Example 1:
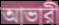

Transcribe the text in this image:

আভারী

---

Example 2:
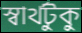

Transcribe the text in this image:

স্বার্থটুকু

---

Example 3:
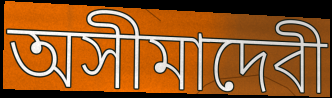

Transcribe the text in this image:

অসীমাদেবী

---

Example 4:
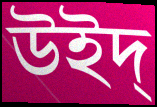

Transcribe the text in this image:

উইদ্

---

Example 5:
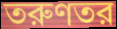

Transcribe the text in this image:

তরুণতর